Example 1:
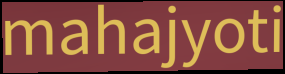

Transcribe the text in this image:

mahajyoti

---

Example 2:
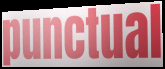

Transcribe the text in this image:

punctual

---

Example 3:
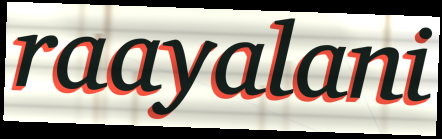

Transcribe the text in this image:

raayalani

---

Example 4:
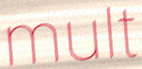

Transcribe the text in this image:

mult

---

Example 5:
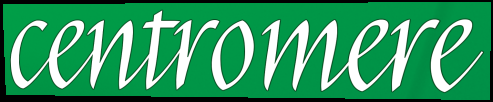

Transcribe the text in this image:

centromere